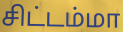
சிட்டம்மா